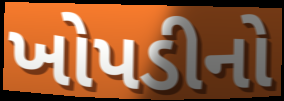
ખોપડીનો